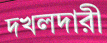
দখলদারী